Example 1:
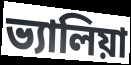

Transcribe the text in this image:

ভ্যালিয়া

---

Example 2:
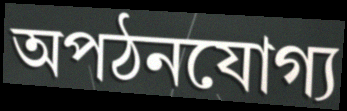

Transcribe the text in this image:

অপঠনযোগ্য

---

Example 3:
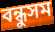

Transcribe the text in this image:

বন্ধুসম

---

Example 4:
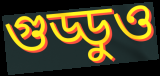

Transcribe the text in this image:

গুড্ডুও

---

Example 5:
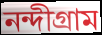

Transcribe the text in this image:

নন্দীগ্রাম